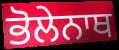
ਭੋਲੇਨਾਥ